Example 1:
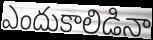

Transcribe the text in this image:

ఎందుకాలిడినా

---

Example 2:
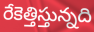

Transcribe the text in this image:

రేకెత్తిస్తున్నది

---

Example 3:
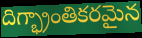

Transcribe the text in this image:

దిగ్భ్రాంతికరమైన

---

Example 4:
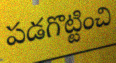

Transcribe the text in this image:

పడగొట్టించి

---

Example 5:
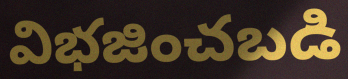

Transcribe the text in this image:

విభజించబడి